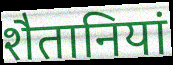
शैतानियां